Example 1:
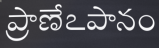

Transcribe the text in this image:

ప్రాణేఽపానం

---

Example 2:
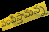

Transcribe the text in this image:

పంపిస్తామన్న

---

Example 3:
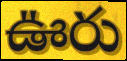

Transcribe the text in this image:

ఊరు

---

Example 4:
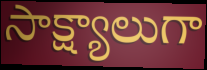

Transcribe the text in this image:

సాక్ష్యాలుగా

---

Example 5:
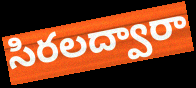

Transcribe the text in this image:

సిరలద్వారా